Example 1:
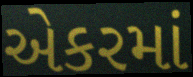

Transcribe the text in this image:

એકરમાં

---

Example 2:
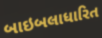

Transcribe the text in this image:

બાઇબલાધારિત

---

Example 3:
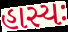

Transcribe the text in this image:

હાસ્યઃ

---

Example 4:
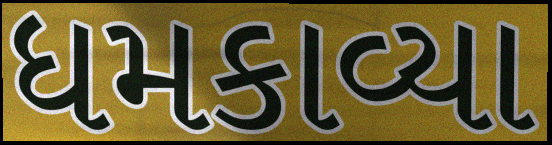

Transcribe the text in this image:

ધમકાવ્યા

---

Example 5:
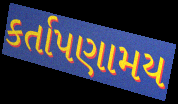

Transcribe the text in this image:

કર્તાપણામય